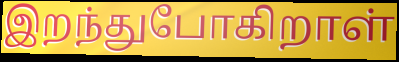
இறந்துபோகிறாள்